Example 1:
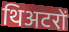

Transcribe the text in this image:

थिअटरों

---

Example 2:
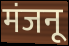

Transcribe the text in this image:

मंजनू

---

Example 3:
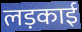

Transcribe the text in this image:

लड़काई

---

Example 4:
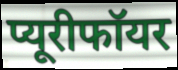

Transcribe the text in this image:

प्यूरीफॉयर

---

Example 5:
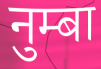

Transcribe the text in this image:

नुम्बा